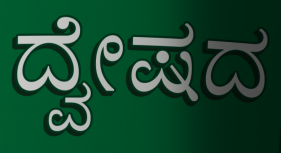
ದ್ವೇಷದ